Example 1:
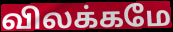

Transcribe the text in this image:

விலக்கமே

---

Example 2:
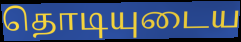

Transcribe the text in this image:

தொடியுடைய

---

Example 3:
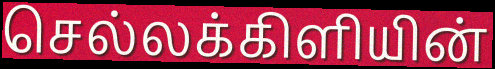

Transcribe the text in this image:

செல்லக்கிளியின்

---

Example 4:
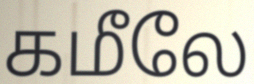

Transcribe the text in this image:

கமீலே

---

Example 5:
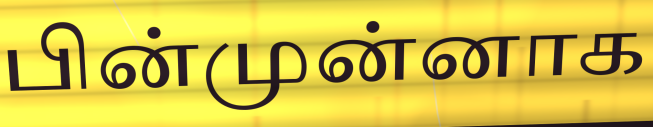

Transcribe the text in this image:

பின்முன்னாக